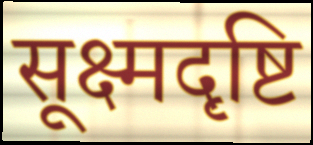
सूक्ष्मदृष्टि